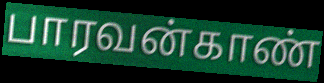
பாரவன்காண்